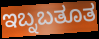
ಇಬ್ನಬತೂತ